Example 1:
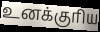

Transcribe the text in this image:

உனக்குரிய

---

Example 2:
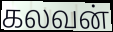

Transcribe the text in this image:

கலவன்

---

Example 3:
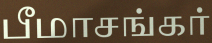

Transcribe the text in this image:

பீமாசங்கர்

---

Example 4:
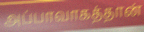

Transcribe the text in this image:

அப்பாவாகத்தான்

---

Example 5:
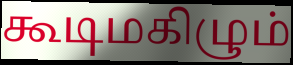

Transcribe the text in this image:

கூடிமகிழும்